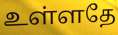
உள்ளதே